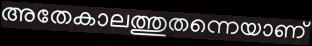
അതേകാലത്തുതന്നെയാണ്